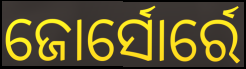
ଜୋର୍ସୋର୍ରେ